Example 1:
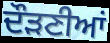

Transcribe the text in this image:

ਦੌੜਣੀਆਂ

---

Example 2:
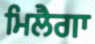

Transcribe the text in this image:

ਮਿਲੈਗਾ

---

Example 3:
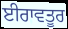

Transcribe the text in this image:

ਈਰਾਵਤੂਰ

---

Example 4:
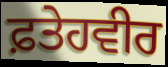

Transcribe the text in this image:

ਫ਼ਤੇਹਵੀਰ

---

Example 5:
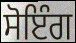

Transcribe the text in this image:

ਸੋਇੰਗ